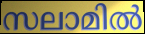
സലാമിൽ